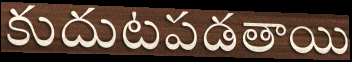
కుదుటపడతాయి